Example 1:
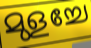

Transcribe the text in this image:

മുളച്ചേ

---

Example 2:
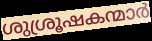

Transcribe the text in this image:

ശുശ്രൂഷകന്മാർ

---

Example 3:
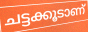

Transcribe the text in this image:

ചട്ടക്കൂടാണ്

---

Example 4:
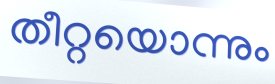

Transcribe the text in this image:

തീറ്റയൊന്നും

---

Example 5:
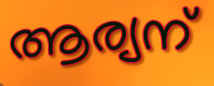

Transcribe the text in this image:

ആര്യന്